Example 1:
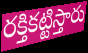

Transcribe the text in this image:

రక్తికట్టిస్తారు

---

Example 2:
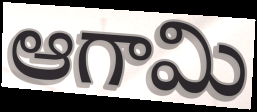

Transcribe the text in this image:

ఆగామి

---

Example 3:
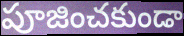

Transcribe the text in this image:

పూజించకుండా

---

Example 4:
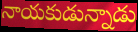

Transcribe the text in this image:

నాయకుడున్నాడు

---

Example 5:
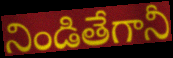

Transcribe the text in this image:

నిండితేగానీ